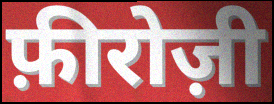
फ़ीरोज़ी